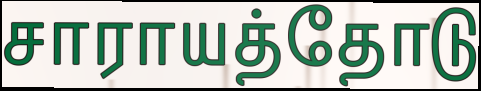
சாராயத்தோடு